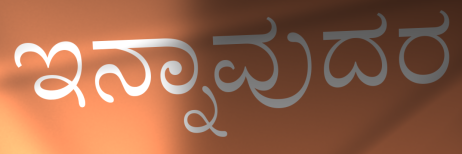
ಇನ್ನಾವುದರ